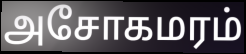
அசோகமரம்